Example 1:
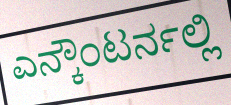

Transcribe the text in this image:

ಎನ್ಕೌಂಟರ್ನಲ್ಲಿ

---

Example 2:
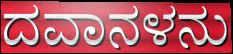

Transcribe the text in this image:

ದವಾನಳನು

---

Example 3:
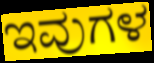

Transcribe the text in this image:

ಇವುಗಳ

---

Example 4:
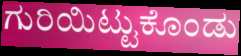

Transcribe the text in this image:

ಗುರಿಯಿಟ್ಟುಕೊಂಡು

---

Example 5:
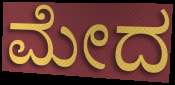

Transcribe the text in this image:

ಮೇದ